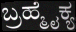
ಬ್ರಹ್ಮೈಕ್ಯ